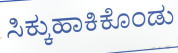
ಸಿಕ್ಕುಹಾಕಿಕೊಂಡು